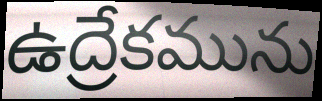
ఉద్రేకమును